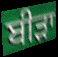
ਬੀੜਾ